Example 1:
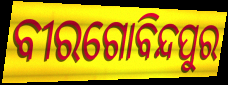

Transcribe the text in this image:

ବୀରଗୋବିନ୍ଦପୁର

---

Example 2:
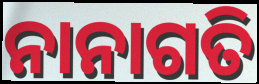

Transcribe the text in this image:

ନାନାଗତି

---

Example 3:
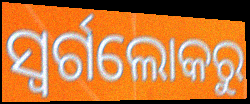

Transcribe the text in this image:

ସ୍ଵର୍ଗଲୋକରୁ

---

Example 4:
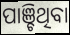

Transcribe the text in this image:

ପାଞ୍ଚିଥିବା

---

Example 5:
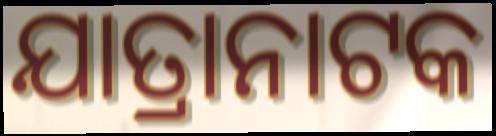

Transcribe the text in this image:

ଯାତ୍ରାନାଟକ